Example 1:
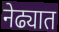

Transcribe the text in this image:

नेढ्यात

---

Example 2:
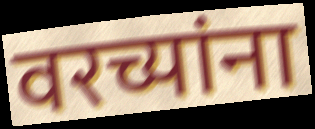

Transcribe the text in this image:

वरच्यांना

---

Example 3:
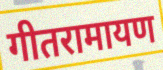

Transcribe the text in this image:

गीतरामायण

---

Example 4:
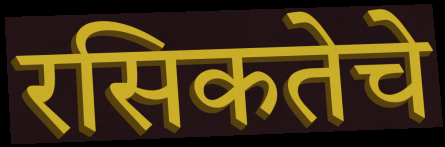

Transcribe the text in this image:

रसिकतेचे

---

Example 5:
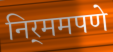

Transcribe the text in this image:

निर्ममपणे